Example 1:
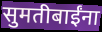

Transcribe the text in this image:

सुमतीबाईंना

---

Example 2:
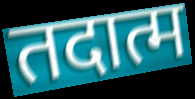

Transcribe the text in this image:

तदात्म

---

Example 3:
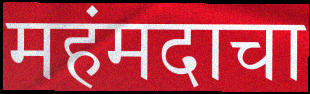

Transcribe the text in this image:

महंमदाचा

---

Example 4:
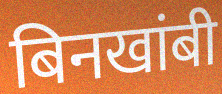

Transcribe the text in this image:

बिनखांबी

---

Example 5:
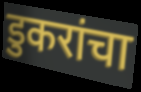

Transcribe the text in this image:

डुकरांचा